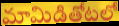
మామిడితోటలో